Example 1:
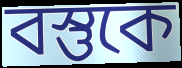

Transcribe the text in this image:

বস্তুকে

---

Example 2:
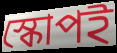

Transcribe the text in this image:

স্কোপই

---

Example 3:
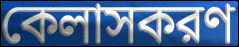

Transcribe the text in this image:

কেলাসকরণ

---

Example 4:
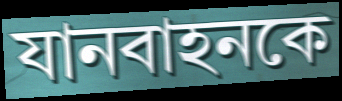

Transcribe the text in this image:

যানবাহনকে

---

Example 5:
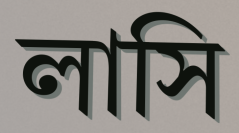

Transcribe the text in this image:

লাসি